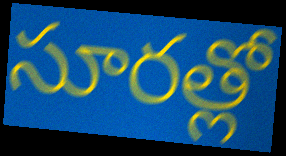
సూరత్లో